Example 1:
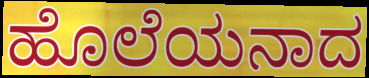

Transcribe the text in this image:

ಹೊಲೆಯನಾದ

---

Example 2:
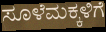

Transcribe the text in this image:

ಸೂಳೆಮಕ್ಕಳಿಗೆ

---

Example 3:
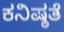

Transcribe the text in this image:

ಕನಿಷ್ಠತೆ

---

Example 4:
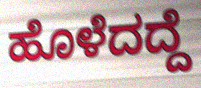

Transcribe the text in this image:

ಹೊಳೆದದ್ದೆ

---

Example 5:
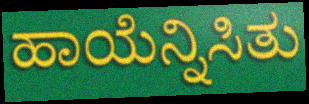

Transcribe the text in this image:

ಹಾಯೆನ್ನಿಸಿತು